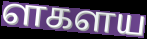
ளகளய